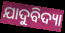
ଯାଦୁବିଦ୍ୟା